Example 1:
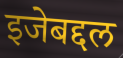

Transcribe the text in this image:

इजेबद्दल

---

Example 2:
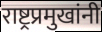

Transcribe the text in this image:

राष्ट्रप्रमुखांनी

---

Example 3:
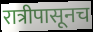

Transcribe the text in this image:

रात्रीपासूनच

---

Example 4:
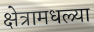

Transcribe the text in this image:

क्षेत्रामधल्या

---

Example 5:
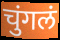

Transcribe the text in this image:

चुंगलं